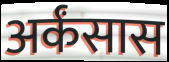
अर्कंसास